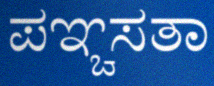
ಪಞ್ಚಸತಾ